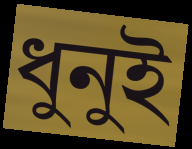
ধুনুই